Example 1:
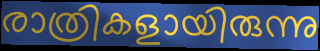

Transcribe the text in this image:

രാത്രികളായിരുന്നു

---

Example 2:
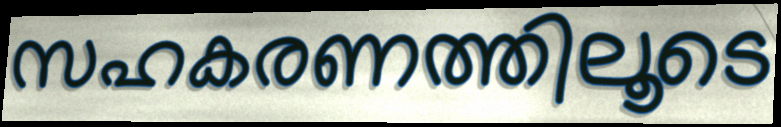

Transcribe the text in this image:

സഹകരണത്തിലൂടെ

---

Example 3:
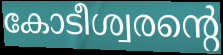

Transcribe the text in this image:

കോടീശ്വരന്റെ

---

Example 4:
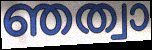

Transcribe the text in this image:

ഞത്വാ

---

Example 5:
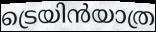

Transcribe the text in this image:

ട്രെയിൻയാത്ര